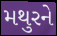
મથુરને